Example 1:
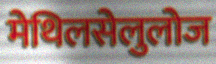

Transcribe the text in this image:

मेथिलसेलुलोज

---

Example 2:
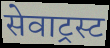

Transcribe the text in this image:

सेवाट्रस्ट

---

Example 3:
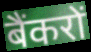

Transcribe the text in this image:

बैंकरों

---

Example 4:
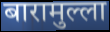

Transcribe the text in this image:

बारामुल्‍ला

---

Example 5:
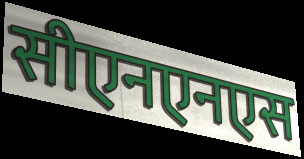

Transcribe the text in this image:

सीएनएनएस